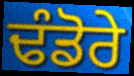
ਢੰਡੋਰੇ